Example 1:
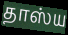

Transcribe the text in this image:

தாஸ்ய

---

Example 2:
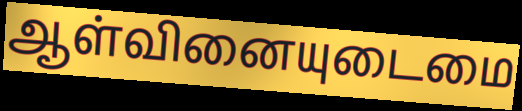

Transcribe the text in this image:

ஆள்வினையுடைமை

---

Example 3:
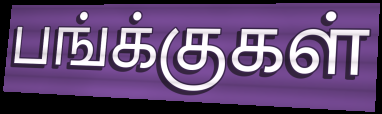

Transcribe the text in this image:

பங்க்குகள்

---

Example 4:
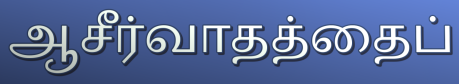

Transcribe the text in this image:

ஆசீர்வாதத்தைப்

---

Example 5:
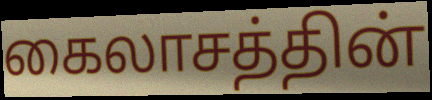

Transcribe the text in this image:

கைலாசத்தின்